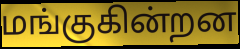
மங்குகின்றன